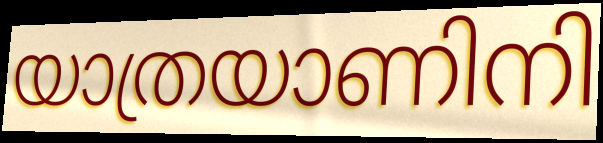
യാത്രയാണിനി